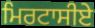
ਮਿਰਟਾਸੀਏ